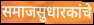
समाजसुधारकांचे